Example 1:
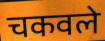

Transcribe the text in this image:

चकवले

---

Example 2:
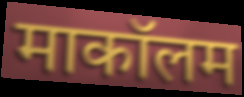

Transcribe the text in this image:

माकॉलम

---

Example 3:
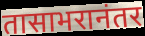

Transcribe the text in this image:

तासाभरानंतर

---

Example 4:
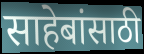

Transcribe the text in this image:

साहेबांसाठी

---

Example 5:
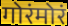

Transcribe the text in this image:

गोरंमोरं